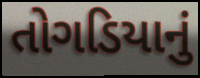
તોગડિયાનું